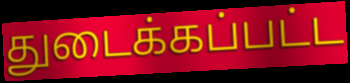
துடைக்கப்பட்ட